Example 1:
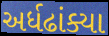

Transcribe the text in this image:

અર્ધઢાંક્યા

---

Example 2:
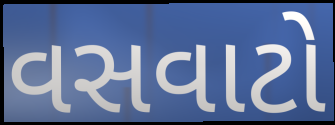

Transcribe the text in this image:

વસવાટો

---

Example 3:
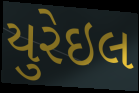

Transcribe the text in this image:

યુરેઇલ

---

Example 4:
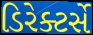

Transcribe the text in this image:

ડિરેક્ટર્સે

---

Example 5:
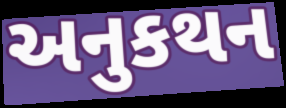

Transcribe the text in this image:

અનુકથન